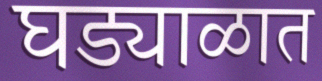
घड्याळात